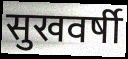
सुखवर्षी